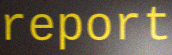
report